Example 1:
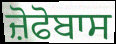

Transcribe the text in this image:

ਜ਼ੋਫੋਬਾਸ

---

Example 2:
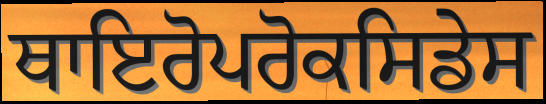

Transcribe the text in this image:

ਥਾਇਰੋਪਰੋਕਸਿਡੇਸ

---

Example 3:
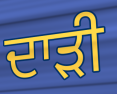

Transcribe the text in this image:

ਦਾੜੀ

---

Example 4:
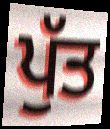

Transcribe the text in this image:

ਪੁੱਤ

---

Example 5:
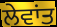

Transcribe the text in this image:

ਲੇਵਾਂਤ